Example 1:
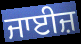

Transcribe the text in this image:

ਜਾਈਜ਼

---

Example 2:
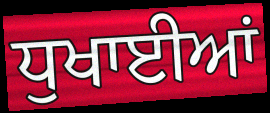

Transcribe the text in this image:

ਧੁਖਾਈਆਂ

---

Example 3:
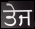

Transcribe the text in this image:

ਤੇਜ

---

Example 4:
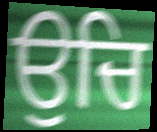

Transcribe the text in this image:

ਉਚਿ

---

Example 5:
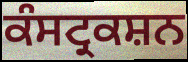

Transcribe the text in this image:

ਕੰਸਟ੍ਰਕਸ਼ਨ